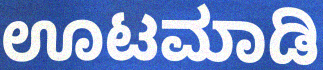
ಊಟಮಾಡಿ